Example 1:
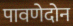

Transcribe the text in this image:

पावणेदोन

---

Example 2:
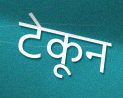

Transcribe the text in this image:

टेकून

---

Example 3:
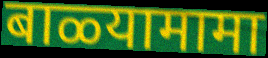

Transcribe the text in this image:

बाळ्यामामा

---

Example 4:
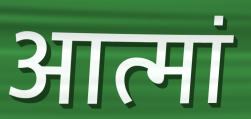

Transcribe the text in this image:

आत्मां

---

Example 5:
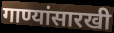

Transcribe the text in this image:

गाण्यांसारखी